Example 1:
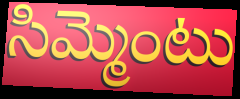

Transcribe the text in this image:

సిమ్మెంటు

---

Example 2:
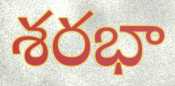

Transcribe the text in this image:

శరభా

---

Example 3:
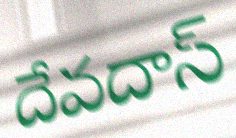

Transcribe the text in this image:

దేవదాస్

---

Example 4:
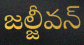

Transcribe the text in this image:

జల్జీవన్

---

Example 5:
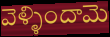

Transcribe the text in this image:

వెళ్ళిందామె